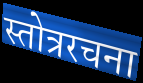
स्तोत्ररचना